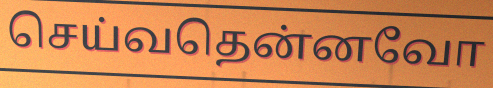
செய்வதென்னவோ